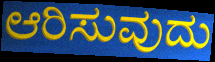
ಆರಿಸುವುದು